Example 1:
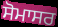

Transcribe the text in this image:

ਸੋਮਾਸਰ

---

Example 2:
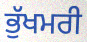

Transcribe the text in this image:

ਭੁੱਖਮਰੀ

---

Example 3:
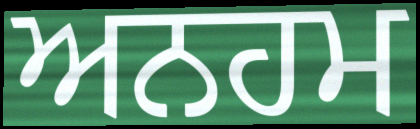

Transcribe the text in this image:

ਅਨਹਮ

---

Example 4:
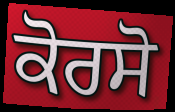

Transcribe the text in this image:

ਕੋਰਸੋ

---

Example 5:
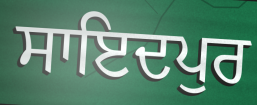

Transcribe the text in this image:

ਸਾਇਦਪੁਰ